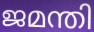
ജമന്തി